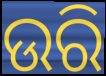
ଉରି